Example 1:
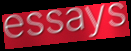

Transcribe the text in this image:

essays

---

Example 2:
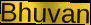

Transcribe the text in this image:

Bhuvan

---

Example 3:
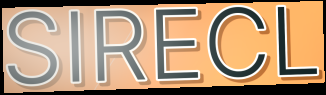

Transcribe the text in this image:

SIRECL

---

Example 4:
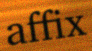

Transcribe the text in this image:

affix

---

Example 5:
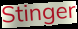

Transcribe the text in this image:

Stinger